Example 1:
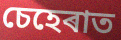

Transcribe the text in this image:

চেহেৰাত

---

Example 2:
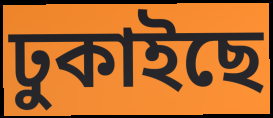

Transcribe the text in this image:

ঢুকাইছে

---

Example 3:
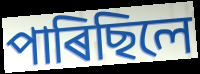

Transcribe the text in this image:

পাৰিছিলে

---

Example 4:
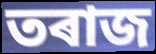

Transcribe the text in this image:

তৰাজ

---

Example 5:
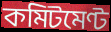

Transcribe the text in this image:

কমিটমেণ্ট